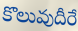
కొలువుదీరే